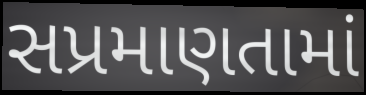
સપ્રમાણતામાં